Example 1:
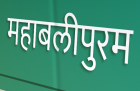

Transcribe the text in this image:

महाबलीपुरम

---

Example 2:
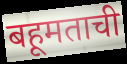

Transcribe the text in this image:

बहूमताची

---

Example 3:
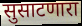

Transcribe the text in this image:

सुसाटणारा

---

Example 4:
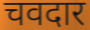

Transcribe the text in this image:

चवदार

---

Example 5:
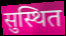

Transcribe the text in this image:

सुस्थित